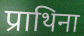
प्राथिना